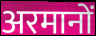
अरमानों